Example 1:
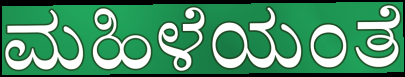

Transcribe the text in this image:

ಮಹಿಳೆಯಂತೆ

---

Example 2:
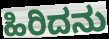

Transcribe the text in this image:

ಹಿರಿದನು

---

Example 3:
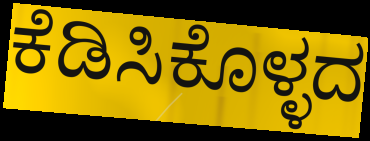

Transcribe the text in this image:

ಕೆಡಿಸಿಕೊಳ್ಳದ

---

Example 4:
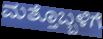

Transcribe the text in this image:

ಮತ್ತೊಬ್ಬಳಿಗೆ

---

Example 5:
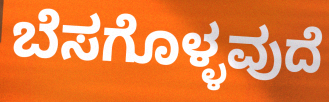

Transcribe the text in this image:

ಬೆಸಗೊಳ್ಳವುದೆ